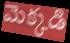
మెక్కడి